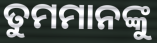
ତୁମମାନଙ୍କୁ